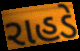
રાહડે